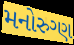
મનોરુગ્ણ